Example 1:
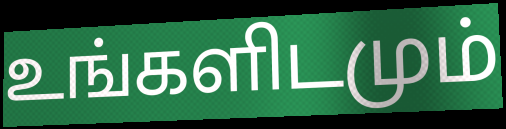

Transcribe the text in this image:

உங்களிடமும்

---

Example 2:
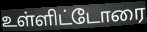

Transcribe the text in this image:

உள்ளிட்டோரை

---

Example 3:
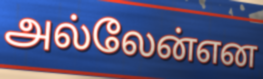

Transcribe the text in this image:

அல்லேன்என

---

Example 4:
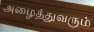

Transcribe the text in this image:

அழைத்துவரும்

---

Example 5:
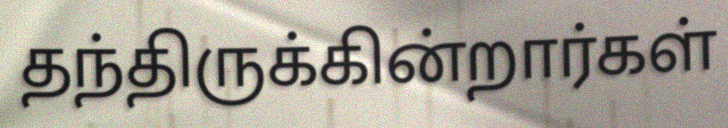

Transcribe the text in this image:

தந்திருக்கின்றார்கள்